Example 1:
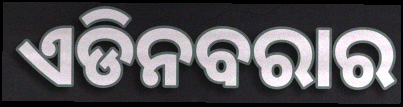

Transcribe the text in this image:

ଏଡିନବରାର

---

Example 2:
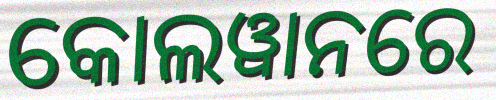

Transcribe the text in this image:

କୋଲୱାନରେ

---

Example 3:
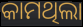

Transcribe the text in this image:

କାମଥିଲା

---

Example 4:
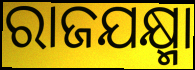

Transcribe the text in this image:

ରାଜଯକ୍ଷ୍ମା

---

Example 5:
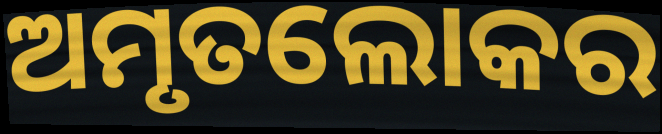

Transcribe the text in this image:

ଅମୃତଲୋକର